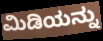
ಮಿಡಿಯನ್ನು